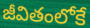
జీవితంలోకే